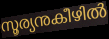
സൂര്യനുകീഴിൽ